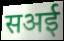
सअई